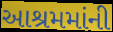
આશ્રમમાંની